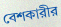
বেশকারীর